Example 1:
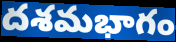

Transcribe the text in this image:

దశమభాగం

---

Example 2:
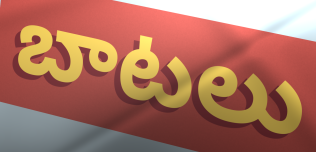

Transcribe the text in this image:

బాటలు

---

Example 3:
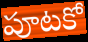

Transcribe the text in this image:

పూటకో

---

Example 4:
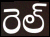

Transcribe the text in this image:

రెల్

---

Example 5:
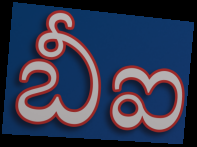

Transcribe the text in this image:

బీఐ